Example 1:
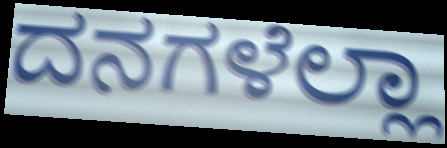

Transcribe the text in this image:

ದನಗಳೆಲ್ಲಾ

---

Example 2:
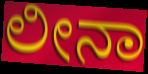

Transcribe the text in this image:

ಲೀನಾ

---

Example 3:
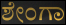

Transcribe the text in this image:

ಶೇಂಗಾ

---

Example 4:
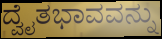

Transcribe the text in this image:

ದ್ವೈತಭಾವವನ್ನು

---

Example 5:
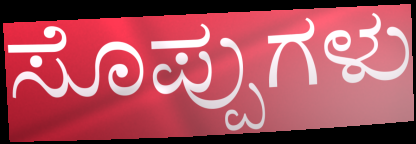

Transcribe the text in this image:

ಸೊಪ್ಪುಗಳು